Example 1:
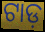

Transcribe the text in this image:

ଟାଡ଼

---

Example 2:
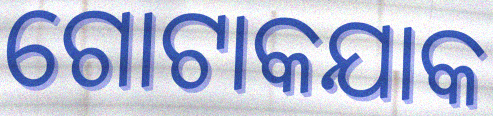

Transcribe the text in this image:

ଗୋଟାକଯାକ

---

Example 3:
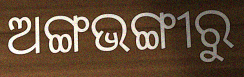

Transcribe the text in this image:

ଅଙ୍ଗଭଙ୍ଗୀରୁ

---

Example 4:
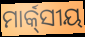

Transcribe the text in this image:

ମାର୍କ୍‍ସୀୟ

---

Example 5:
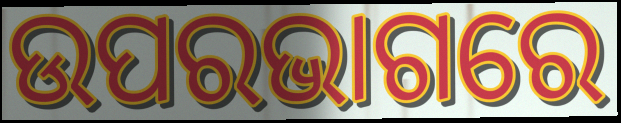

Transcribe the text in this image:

ଉପରଭାଗରେ